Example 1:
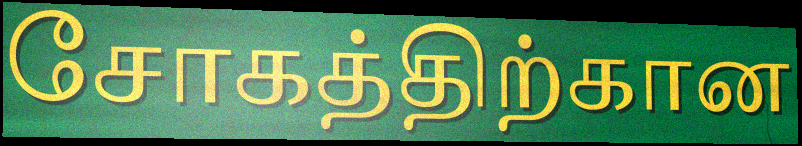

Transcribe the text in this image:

சோகத்திற்கான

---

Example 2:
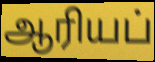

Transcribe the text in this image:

ஆரியப்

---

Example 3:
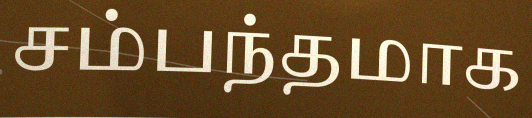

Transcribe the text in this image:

சம்பந்தமாக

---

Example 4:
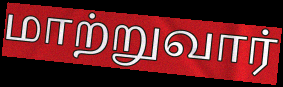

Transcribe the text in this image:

மாற்றுவார்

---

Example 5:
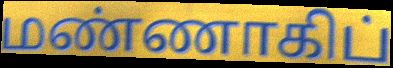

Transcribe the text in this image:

மண்ணாகிப்